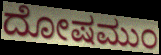
ದೋಷಮುಂ